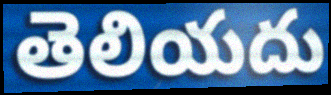
తెలియదు